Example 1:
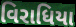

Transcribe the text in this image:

વિરાધિયા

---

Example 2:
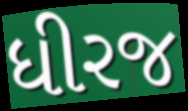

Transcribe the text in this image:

ધીરજ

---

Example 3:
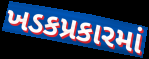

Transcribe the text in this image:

ખડકપ્રકારમાં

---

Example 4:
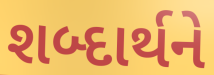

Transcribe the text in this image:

શબ્દાર્થને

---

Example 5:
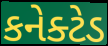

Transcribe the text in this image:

કનેક્ટેડ